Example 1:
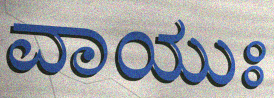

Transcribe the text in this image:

ವಾಯುಃ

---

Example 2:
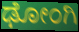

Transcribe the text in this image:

ಢೋಂಗಿ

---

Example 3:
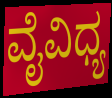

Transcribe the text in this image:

ವೈವಿಧ್ಯ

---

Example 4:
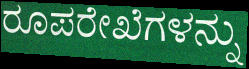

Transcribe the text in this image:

ರೂಪರೇಖೆಗಳನ್ನು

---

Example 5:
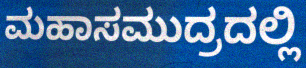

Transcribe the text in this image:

ಮಹಾಸಮುದ್ರದಲ್ಲಿ